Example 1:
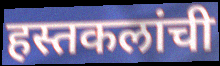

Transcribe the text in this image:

हस्तकलांची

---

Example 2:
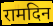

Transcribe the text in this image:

रामदिन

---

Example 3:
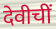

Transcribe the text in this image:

देवीचीं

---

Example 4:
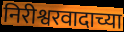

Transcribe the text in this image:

निरीश्वरवादाच्या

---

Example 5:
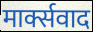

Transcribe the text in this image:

मार्क्सवाद